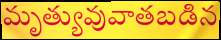
మృత్యువువాతబడిన